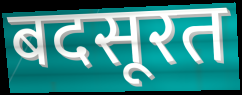
बदसूरत